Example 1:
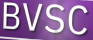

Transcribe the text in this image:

BVSC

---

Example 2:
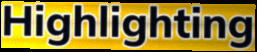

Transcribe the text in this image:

Highlighting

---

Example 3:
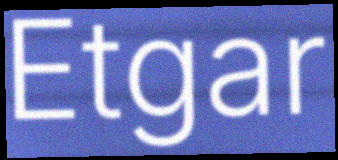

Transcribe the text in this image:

Etgar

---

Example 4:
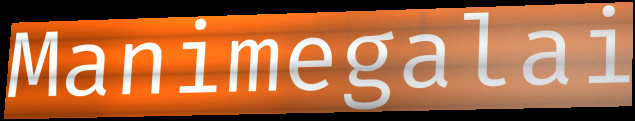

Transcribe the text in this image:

Manimegalai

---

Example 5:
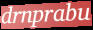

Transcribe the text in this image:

drnprabu